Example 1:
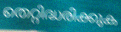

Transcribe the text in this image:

തെറ്റിദ്ധരിക്കുക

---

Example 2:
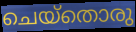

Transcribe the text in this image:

ചെയ്തൊരു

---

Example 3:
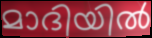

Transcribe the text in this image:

മാദിയിൽ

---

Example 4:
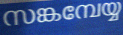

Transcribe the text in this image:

സങ്കമ്പേയ്യ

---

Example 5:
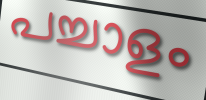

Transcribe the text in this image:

പച്ചാളം